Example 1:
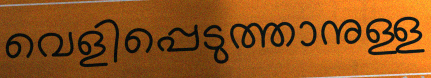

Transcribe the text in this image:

വെളിപ്പെടുത്താനുള്ള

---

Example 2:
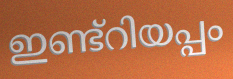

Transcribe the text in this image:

ഇണ്ട്റിയപ്പം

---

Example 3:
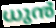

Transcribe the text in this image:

ധുൻ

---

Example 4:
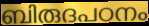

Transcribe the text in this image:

ബിരുദപഠനം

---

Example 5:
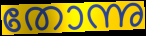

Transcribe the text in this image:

തോന്നു